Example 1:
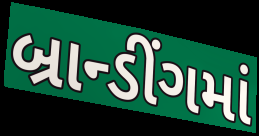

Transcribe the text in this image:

બ્રાન્ડીંગમાં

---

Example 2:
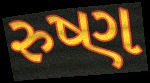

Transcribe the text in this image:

રુષ્ણ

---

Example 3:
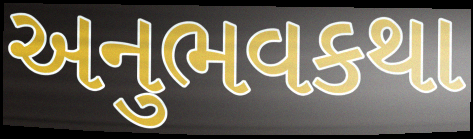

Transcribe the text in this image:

અનુભવકથા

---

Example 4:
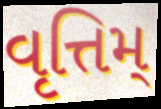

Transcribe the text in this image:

વૃત્તિમ્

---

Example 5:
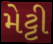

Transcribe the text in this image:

મેટ્ટી